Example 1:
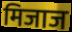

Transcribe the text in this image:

मिजाज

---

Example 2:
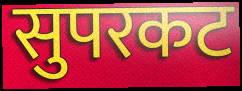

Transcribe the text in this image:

सुपरकट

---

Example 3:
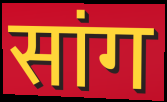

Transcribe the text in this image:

सांग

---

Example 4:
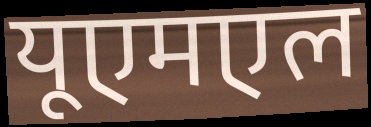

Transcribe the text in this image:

यूएमएल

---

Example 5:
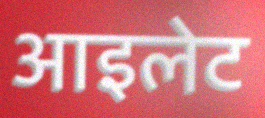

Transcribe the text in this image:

आइलेट